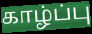
காழ்ப்பு